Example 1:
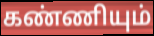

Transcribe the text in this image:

கண்ணியும்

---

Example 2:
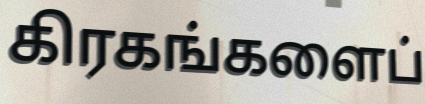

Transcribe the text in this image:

கிரகங்களைப்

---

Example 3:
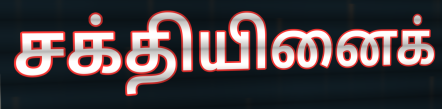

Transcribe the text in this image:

சக்தியினைக்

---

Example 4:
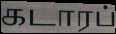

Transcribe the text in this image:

கடாரப்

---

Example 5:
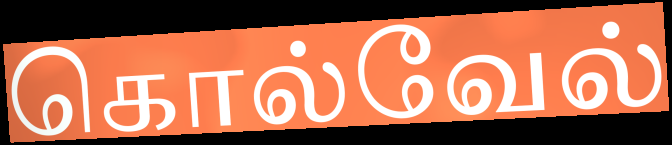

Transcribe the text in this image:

கொல்வேல்